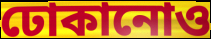
ঢোকানোও